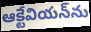
ఆక్టేవియన్‌ను